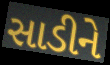
સાડીને